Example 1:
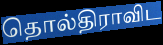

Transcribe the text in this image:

தொல்திராவிட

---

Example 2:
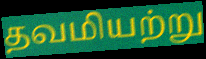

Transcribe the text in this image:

தவமியற்று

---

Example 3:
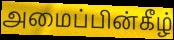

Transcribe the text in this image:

அமைப்பின்கீழ்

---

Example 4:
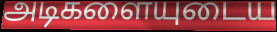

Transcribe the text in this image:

அடிகளையுடைய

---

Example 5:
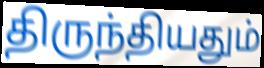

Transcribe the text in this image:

திருந்தியதும்